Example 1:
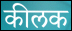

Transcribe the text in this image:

कीलक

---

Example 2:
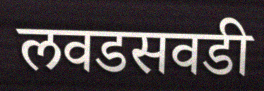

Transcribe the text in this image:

लवडसवडी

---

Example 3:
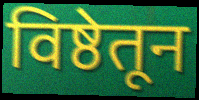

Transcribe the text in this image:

विष्ठेतून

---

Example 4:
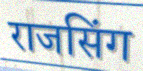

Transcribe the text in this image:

राजसिंग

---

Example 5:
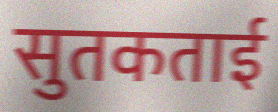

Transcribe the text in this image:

सुतकताई